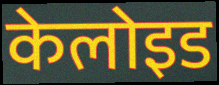
केलोइड